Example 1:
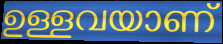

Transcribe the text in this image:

ഉള്ളവയാണ്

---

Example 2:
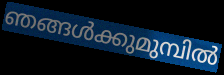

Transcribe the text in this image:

ഞങ്ങൾക്കുമുമ്പിൽ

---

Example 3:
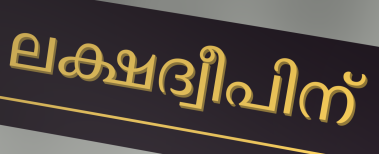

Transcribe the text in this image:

ലക്ഷദ്വീപിന്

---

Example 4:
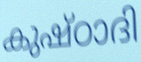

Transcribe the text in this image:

കുഷ്ഠാദി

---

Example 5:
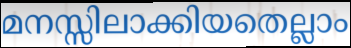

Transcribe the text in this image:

മനസ്സിലാക്കിയതെല്ലാം